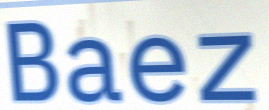
Baez